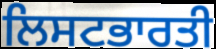
ਲਿਸਟਭਾਰਤੀ